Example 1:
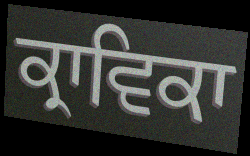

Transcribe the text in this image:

ਕ੍ਰਾਵਿਕਾ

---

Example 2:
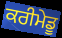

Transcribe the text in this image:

ਕਰੀਮੇਡੂ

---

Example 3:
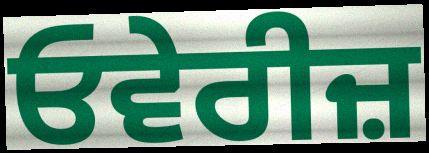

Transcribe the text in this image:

ਓਵੇਰੀਜ਼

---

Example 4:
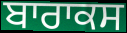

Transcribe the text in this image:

ਬਾਰਾਕਸ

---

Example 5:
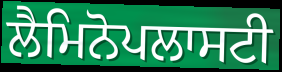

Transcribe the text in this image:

ਲੈਮਿਨੋਪਲਾਸਟੀ